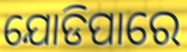
ଯୋଡିପାରେ